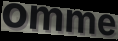
omme